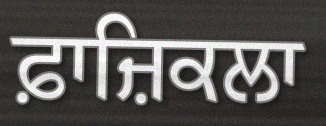
ਫ਼ਾਜ਼ਿਕਲਾ